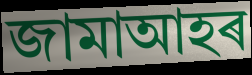
জামাআহৰ